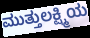
ಮುತ್ತುಲಕ್ಷ್ಮಿಯ